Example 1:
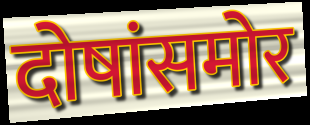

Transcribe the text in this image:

दोषांसमोर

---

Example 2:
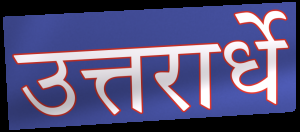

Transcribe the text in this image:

उत्तरार्धे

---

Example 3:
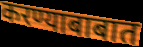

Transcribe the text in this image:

करण्याबाबात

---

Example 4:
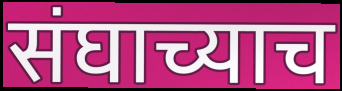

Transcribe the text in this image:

संघाच्याच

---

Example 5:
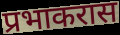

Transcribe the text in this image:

प्रभाकरास